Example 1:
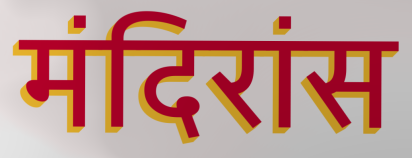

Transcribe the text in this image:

मंदिरांस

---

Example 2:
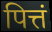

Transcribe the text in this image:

पित्तं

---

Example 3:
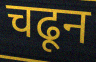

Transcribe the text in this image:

चढून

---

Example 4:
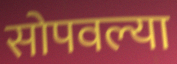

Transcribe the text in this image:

सोपवल्या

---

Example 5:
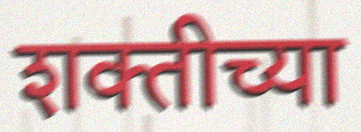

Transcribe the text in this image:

शक्तीच्या